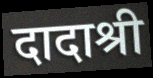
दादाश्री